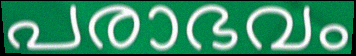
പരാഭവം